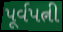
પૂર્વપત્ની